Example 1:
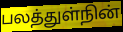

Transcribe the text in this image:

பலத்துள்நின்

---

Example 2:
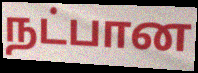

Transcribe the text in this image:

நட்பான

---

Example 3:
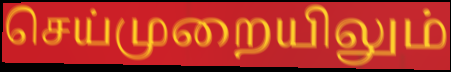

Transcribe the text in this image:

செய்முறையிலும்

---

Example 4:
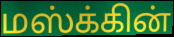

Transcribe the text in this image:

மஸ்க்கின்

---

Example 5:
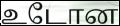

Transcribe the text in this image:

உடோன